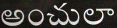
అంచులా